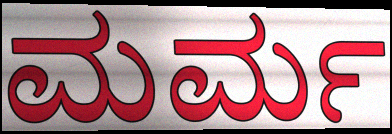
ಮರ್ಮ